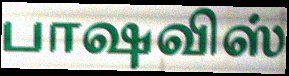
பாஷவிஸ்